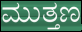
ಮುತ್ತಣ